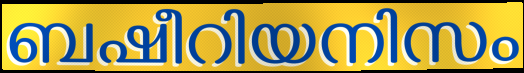
ബഷീറിയനിസം